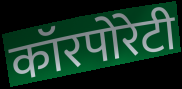
कॉरपोरेटी